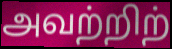
அவற்றிற்